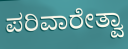
ಪರಿವಾರೇತ್ವಾ